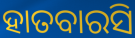
ହାତବାରସି